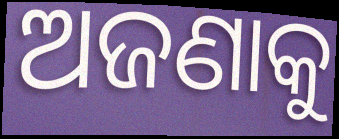
ଅଜଣାକୁ